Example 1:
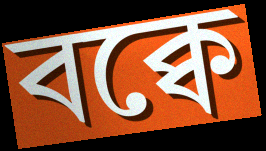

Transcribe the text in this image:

বক্বে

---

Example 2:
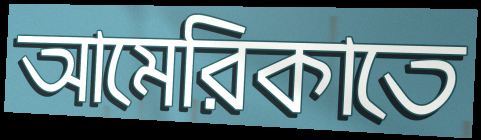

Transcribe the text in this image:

আমেরিকাতে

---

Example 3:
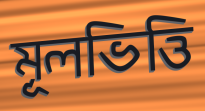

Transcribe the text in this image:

মূলভিত্তি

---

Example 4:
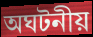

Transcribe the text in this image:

অঘটনীয়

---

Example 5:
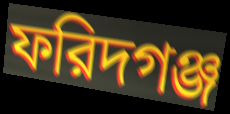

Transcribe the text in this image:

ফরিদগঞ্জ